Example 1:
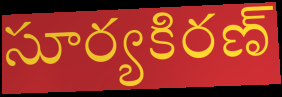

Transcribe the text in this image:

సూర్యకిరణ్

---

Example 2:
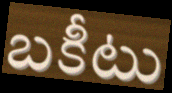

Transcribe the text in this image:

బకీటు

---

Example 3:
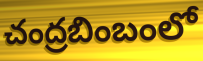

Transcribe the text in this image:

చంద్రబింబంలో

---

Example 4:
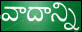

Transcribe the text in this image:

వాదాన్ని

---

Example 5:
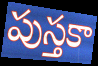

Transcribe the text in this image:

పుస్తకా